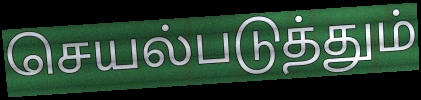
செயல்படுத்தும்